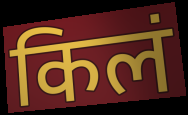
किलं